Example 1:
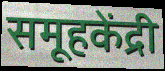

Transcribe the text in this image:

समूहकेंद्री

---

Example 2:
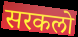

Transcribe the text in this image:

सरकलो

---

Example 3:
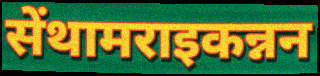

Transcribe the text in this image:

सेंथामराइकन्नन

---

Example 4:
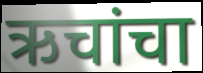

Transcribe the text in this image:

ऋचांचा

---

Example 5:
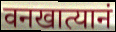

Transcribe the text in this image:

वनखात्यानं